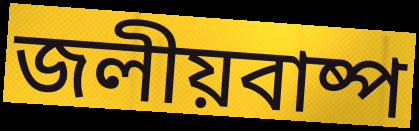
জলীয়বাষ্প